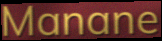
Manane